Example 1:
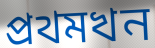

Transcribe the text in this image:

প্ৰথমখন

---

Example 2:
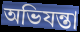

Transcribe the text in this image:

অভিযন্তা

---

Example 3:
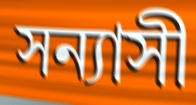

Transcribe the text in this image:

সন্যাসী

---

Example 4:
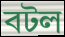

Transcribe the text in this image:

বটল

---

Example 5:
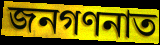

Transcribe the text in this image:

জনগণনাত